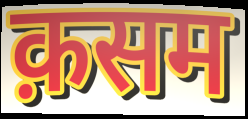
क़सम